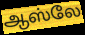
ஆஸ்லே